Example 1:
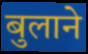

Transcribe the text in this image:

बुलाने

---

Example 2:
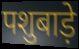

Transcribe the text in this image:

पशुबाड़े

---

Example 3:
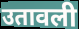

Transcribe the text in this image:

उतावली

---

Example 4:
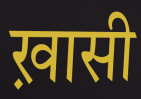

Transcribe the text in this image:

ख़ासी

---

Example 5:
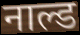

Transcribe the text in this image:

नाल्ड